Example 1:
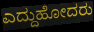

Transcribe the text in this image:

ಎದ್ದುಹೋದರು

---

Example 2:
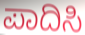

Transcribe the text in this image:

ಪಾದಿಸಿ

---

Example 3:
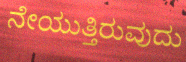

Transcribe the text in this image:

ನೇಯುತ್ತಿರುವುದು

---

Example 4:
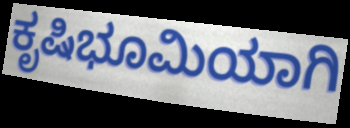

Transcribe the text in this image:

ಕೃಷಿಭೂಮಿಯಾಗಿ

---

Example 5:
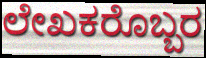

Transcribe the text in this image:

ಲೇಖಕರೊಬ್ಬರ